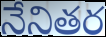
నేనితర